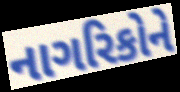
નાગરિકોને